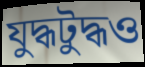
যুদ্ধটুদ্ধও